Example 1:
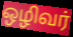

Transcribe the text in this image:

ஒழிவர்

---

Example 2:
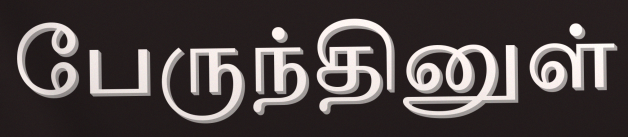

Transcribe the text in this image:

பேருந்தினுள்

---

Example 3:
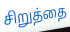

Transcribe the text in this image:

சிறுத்தை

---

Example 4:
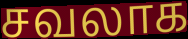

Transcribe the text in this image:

சவலாக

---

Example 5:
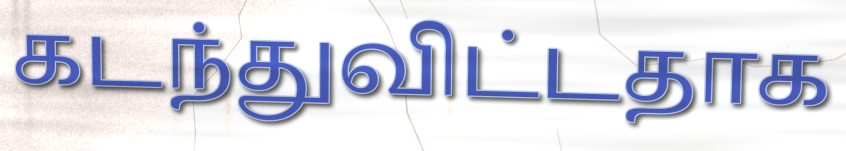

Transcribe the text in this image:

கடந்துவிட்டதாக